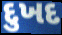
દુખદ